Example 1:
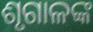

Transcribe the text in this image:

ଶୃଗାଳଙ୍କ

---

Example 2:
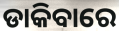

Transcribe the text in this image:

ଡାକିବାରେ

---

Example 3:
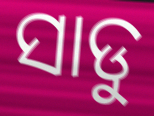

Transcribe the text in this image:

ସାଡୁ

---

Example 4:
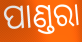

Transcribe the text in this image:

ପାଣ୍ଡରା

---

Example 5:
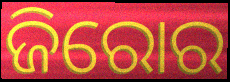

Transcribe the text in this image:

ଜିରୋର